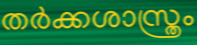
തർക്കശാസ്ത്രം